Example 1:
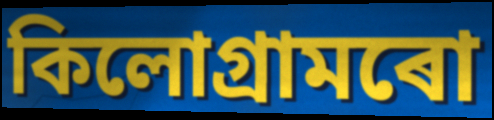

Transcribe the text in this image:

কিলোগ্ৰামৰো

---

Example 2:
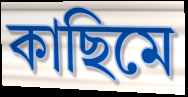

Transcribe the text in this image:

কাছিমে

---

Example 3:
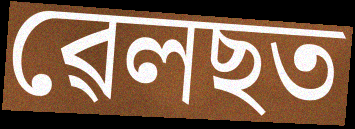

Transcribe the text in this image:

ৱেলছত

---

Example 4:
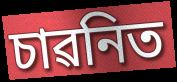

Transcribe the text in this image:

চাৱনিত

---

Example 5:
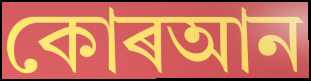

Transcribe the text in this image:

কোৰআন